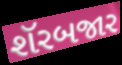
શૅરબજાર